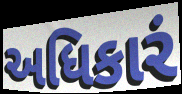
અધિકારં